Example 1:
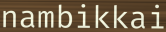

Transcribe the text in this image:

nambikkai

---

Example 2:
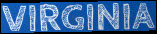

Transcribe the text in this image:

VIRGINIA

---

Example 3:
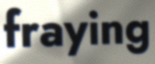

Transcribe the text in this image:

fraying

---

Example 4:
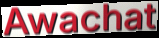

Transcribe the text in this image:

Awachat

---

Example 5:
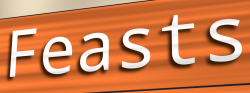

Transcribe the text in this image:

Feasts